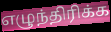
எழுந்திரிக்க